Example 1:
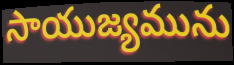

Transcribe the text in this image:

సాయుజ్యమును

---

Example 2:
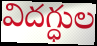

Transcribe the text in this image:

విదగ్ధుల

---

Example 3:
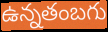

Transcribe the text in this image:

ఉన్నతంబగు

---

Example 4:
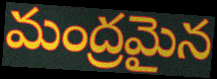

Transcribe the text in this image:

మంద్రమైన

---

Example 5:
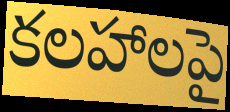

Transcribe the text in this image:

కలహాలపై